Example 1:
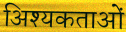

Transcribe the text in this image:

अिश्यकताओं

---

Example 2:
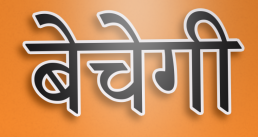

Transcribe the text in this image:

बेचेगी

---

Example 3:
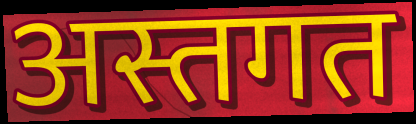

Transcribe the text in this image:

अस्तगत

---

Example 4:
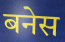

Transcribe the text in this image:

बनेस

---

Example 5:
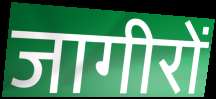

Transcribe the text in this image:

जागीरों